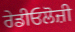
ਰੇਡੀਓਲੋਜ਼ੀ